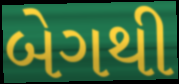
બેગથી